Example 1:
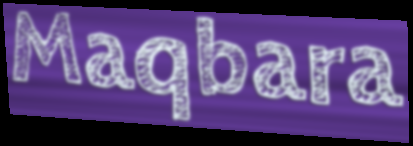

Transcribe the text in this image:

Maqbara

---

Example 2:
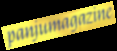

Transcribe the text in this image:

panjumagazine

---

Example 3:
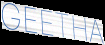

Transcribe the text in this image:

GEETHA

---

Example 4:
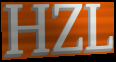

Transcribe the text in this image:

HZL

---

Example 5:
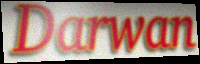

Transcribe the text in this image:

Darwan